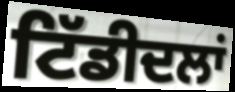
ਟਿੱਡੀਦਲਾਂ